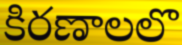
కిరణాలలొ